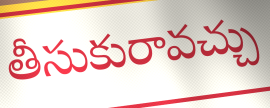
తీసుకురావచ్చు